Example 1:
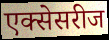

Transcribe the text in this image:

एक्सेसरीज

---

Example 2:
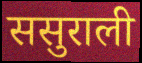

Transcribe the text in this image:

ससुराली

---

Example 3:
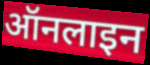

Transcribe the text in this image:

ऑनलाइन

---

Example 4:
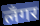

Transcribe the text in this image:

लँगर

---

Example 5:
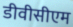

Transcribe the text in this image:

डीवीसीएम